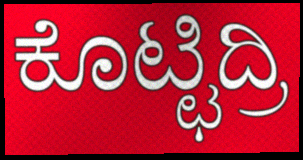
ಕೊಟ್ಟಿದ್ರಿ